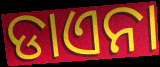
ଡାଏନା